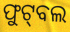
ଫୁଟ୍‌ବଲ